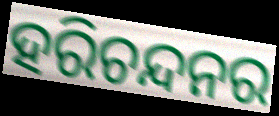
ହରିଚନ୍ଦନର